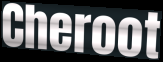
Cheroot